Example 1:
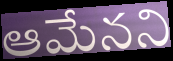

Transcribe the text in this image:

ఆమేనని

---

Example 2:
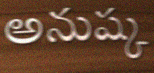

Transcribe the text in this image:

అనుష్క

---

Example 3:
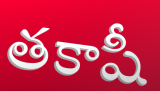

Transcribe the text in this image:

తకాషీ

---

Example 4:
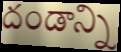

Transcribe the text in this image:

దండాన్ని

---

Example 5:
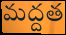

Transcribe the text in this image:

మద్దత